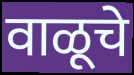
वाळूचे